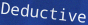
Deductive